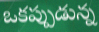
ఒకప్పుడున్న